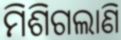
ମିଶିଗଲାଣି